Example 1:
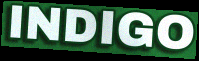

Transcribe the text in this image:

INDIGO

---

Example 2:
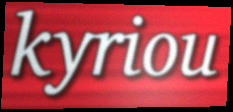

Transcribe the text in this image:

kyriou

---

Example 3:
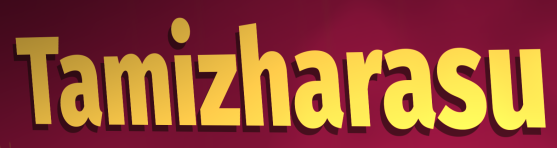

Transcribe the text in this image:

Tamizharasu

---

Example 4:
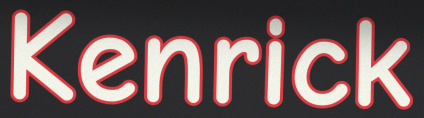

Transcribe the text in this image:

Kenrick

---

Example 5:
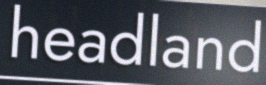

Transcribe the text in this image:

headland